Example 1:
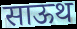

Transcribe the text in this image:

साऊथ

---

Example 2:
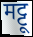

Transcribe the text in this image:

मट्टू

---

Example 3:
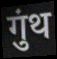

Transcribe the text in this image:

गुंथ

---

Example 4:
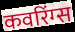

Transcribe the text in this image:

कवरिंग्स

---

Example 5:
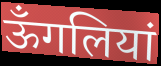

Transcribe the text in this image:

ऊँगलियां